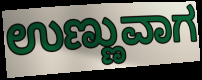
ಉಣ್ಣುವಾಗ